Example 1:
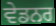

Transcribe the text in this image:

ਵੇਡਨਰ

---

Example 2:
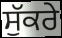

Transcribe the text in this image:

ਸੁੱਕਰੇ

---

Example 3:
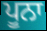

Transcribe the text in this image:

ਪੂਨਾ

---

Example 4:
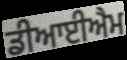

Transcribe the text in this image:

ਡੀਆਈਐਮ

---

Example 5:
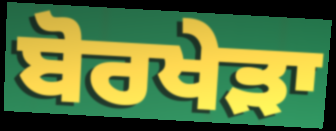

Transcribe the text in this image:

ਬੋਰਖੇੜਾ